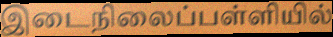
இடைநிலைப்பள்ளியில்